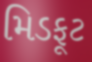
મિડફૂટ